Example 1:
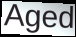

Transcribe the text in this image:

Aged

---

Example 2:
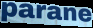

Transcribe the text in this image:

parane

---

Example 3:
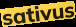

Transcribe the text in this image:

sativus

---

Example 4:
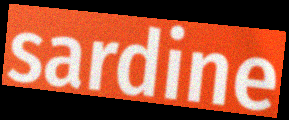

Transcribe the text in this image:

sardine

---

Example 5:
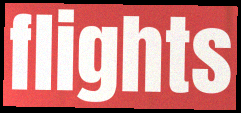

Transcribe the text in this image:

flights